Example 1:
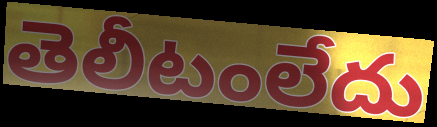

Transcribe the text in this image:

తెలీటంలేదు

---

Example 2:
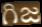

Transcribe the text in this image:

గిజ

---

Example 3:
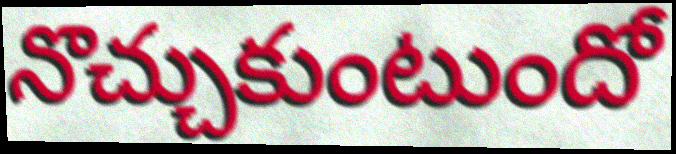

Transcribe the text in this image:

నొచ్చుకుంటుందో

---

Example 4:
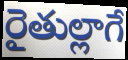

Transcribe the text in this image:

రైతుల్లాగే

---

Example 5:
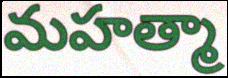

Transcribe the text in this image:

మహత్మా